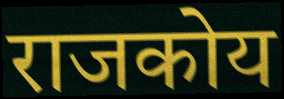
राजकोय